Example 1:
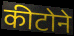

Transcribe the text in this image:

कीटोने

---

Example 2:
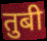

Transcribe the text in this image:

तुबी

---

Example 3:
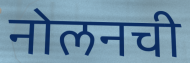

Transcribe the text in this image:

नोलनची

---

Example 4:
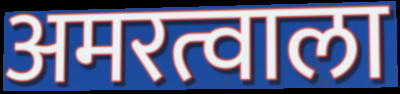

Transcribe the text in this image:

अमरत्वाला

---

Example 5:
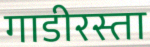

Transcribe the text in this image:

गाडीरस्ता